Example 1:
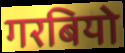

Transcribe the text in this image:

गरबियो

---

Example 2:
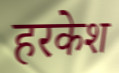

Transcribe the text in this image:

हरकेश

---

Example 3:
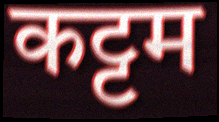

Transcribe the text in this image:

कट्टम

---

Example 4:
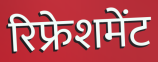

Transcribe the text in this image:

रिफ्रेशमेंट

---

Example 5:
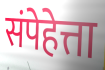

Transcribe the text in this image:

संपेहेत्ता